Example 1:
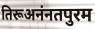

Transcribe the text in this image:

तिरूअनंनतपुरम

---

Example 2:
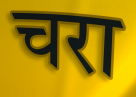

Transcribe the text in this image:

चरा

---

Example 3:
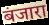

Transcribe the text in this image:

बंजारा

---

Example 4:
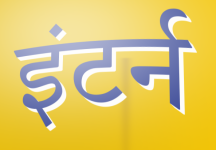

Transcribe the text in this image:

इंटर्न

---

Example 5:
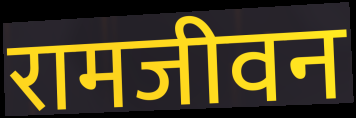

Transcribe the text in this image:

रामजीवन